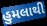
હુમલાથી